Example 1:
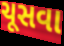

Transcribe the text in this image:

ચૂસવા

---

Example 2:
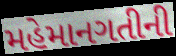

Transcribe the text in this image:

મહેમાનગતીની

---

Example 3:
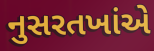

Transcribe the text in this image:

નુસરતખાંએ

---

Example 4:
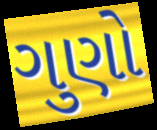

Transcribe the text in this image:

ગુણો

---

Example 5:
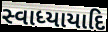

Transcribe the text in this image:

સ્વાધ્યાયાદિ